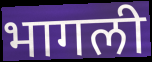
भागली